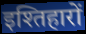
इश्तिहारों